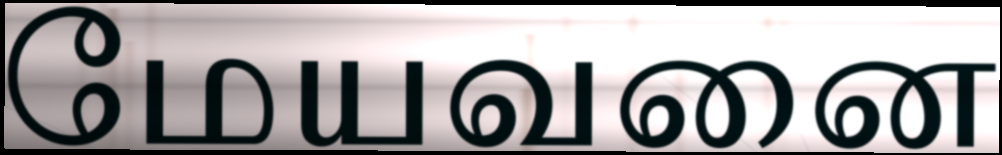
மேயவனை